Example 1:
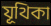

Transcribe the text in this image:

যূথিকা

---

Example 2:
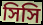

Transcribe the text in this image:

সিসি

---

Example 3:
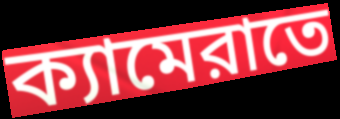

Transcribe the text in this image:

ক্যামেরাতে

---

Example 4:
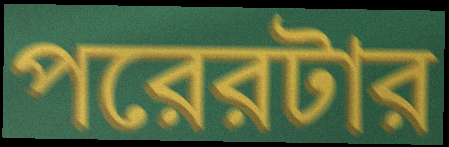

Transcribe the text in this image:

পরেরটার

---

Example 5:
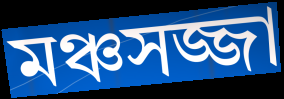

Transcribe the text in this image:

মঞ্চসজ্জা